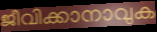
ജീവിക്കാനാവുക